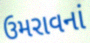
ઉમરાવનાં